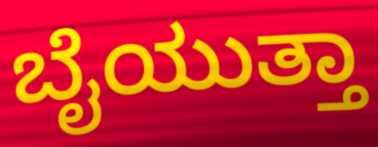
ಬೈಯುತ್ತಾ